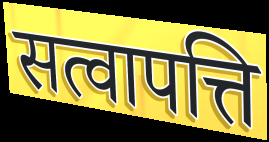
सत्वापत्ति